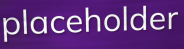
placeholder